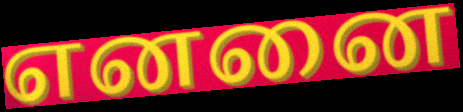
எனனை